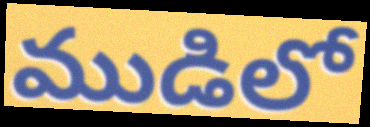
ముడిలో